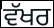
ਵੱਖਰ